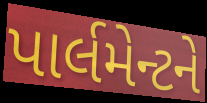
પાર્લમેન્ટને